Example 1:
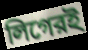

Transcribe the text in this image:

লিগেরই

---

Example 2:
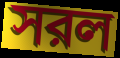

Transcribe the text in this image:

সরল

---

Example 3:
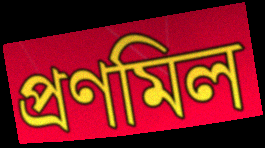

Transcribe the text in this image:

প্রণমিল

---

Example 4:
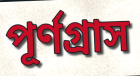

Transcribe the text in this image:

পূর্ণগ্রাস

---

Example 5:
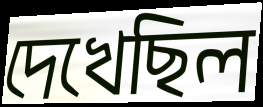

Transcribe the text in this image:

দেখেছিল